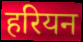
हरियन